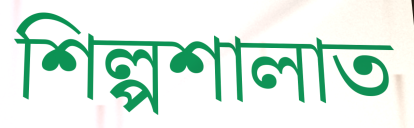
শিল্পশালাত